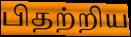
பிதற்றிய